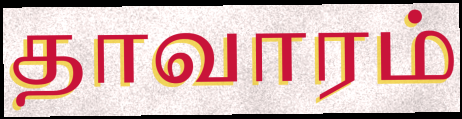
தாவாரம்